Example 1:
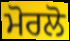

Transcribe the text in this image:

ਮੋਰਲੋ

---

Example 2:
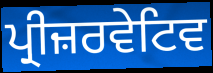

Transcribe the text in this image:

ਪ੍ਰੀਜ਼ਰਵੇਟਿਵ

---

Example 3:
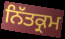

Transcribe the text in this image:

ਨਿੱਤਕ੍ਰਮ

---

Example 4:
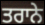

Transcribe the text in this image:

ਤਰਾਨੇ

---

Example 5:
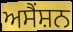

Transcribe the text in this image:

ਅਸੈਂਸ਼ਨ